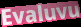
Evaluvu